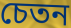
চেতন